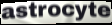
astrocyte